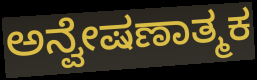
ಅನ್ವೇಷಣಾತ್ಮಕ